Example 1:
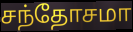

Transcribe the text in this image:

சந்தோசமா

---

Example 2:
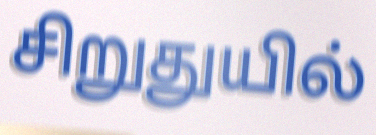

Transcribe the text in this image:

சிறுதுயில்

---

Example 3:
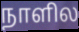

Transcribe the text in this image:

நாளில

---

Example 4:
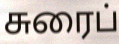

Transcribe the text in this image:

சுரைப்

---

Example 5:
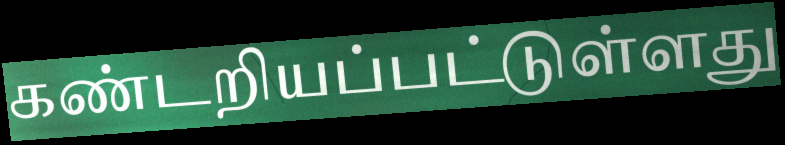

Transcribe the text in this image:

கண்டறியப்பட்டுள்ளது